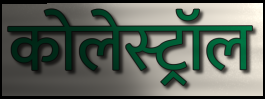
कोलेस्‍ट्रॉल